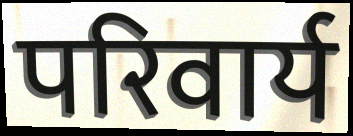
परिवार्य